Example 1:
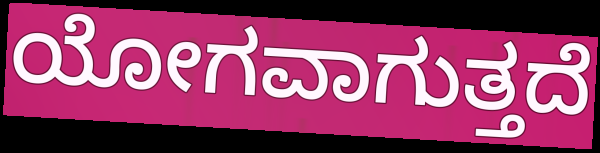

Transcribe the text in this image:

ಯೋಗವಾಗುತ್ತದೆ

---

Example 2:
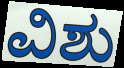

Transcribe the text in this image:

ವಿಶು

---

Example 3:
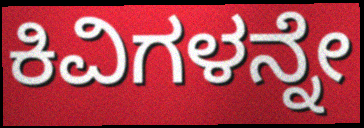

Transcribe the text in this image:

ಕಿವಿಗಳನ್ನೇ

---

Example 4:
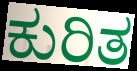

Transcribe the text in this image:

ಕುರಿತ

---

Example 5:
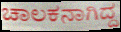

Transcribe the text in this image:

ಚಾಲಕನಾಗಿದ್ದ